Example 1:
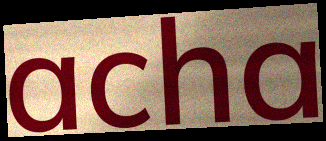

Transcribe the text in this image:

acha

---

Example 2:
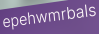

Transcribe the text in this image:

epehwmrbals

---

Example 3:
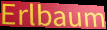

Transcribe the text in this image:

Erlbaum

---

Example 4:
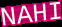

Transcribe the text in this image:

NAHI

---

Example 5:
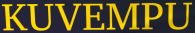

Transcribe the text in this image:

KUVEMPU